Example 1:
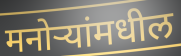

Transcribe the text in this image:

मनोऱ्यांमधील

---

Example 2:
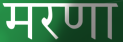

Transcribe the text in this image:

मरणा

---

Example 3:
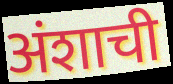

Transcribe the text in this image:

अंशाची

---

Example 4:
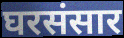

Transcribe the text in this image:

घरसंसार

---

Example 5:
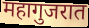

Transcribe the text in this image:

महागुजरात